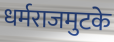
धर्मराजमुटके